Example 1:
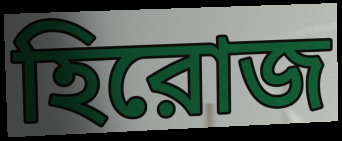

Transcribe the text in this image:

হিরোজ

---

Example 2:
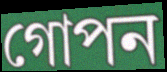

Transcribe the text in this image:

গোপন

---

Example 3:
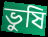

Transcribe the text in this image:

ভুষি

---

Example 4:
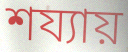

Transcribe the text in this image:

শয্যায়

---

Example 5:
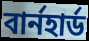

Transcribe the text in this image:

বার্নহার্ড